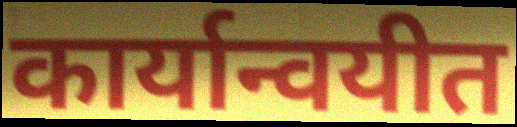
कार्यान्वयीत